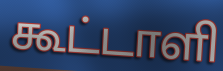
கூட்டாளி